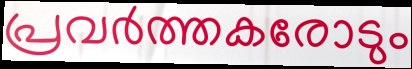
പ്രവർത്തകരോടും